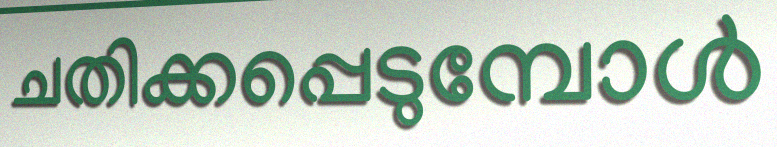
ചതിക്കപ്പെടുമ്പോൾ